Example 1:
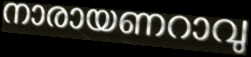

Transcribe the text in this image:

നാരായണറാവു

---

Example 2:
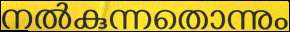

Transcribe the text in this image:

നൽകുന്നതൊന്നും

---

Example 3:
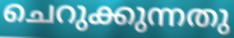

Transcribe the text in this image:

ചെറുക്കുന്നതു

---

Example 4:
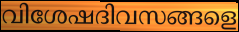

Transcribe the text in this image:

വിശേഷദിവസങ്ങളെ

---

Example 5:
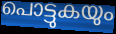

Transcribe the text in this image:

പൊട്ടുകയും